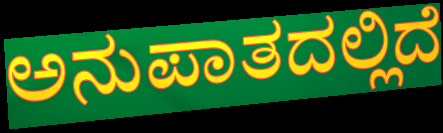
ಅನುಪಾತದಲ್ಲಿದೆ